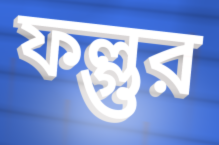
ফল্গুর